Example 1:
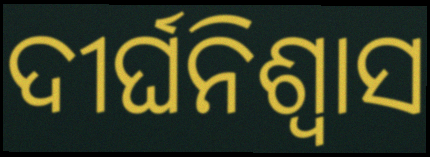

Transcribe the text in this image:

ଦୀର୍ଘନିଶ୍ୱାସ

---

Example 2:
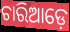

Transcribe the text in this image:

ଚାରିଆଡ଼େ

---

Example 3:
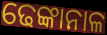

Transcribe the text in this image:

ଢେଙ୍କାନାଳ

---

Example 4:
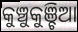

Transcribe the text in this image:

କୁଞ୍ଚୁକୁଞ୍ଚିଆ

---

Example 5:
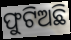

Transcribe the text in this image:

ଫୁଟିଅଛି